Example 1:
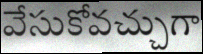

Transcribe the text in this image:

వేసుకోవచ్చుగా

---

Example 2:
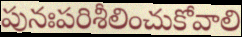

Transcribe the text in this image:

పునఃపరిశీలించుకోవాలి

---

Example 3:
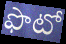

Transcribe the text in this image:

ఫొటో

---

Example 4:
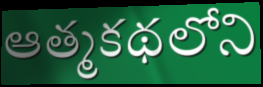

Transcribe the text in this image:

ఆత్మకథలోని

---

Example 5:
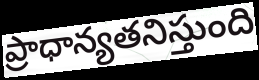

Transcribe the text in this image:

ప్రాధాన్యతనిస్తుంది